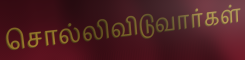
சொல்லிவிடுவார்கள்